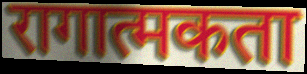
रागात्मकता